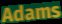
Adams